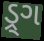
ડ્ર્ગ